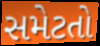
સમેટતો